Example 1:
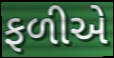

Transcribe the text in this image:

ફળીએ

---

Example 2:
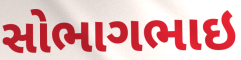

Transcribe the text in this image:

સોભાગભાઇ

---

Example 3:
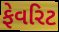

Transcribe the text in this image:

ફેવરિટ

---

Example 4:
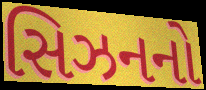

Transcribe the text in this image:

સિઝનનો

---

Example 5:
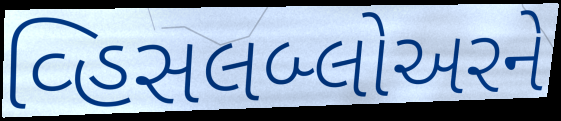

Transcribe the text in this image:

વ્હિસલબ્લોઅરને